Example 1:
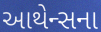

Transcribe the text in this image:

આથેન્સના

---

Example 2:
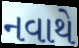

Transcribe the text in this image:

નવાથે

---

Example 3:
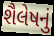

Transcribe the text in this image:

શૈલેષનું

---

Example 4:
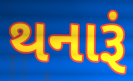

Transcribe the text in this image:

થનારૂં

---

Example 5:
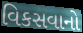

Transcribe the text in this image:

વિકસવાનો